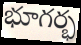
భూగర్భ